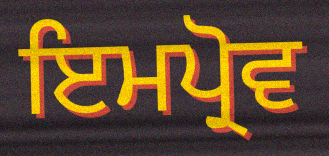
ਇਮਪ੍ਰੋਵ